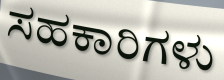
ಸಹಕಾರಿಗಳು